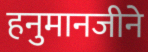
हनुमानजीने